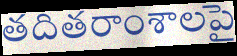
తదితరాంశాలపై